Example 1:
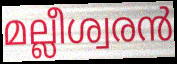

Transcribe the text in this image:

മല്ലീശ്വരൻ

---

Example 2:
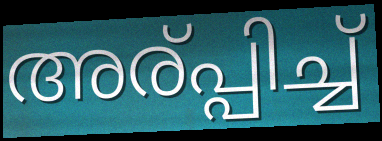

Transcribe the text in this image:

അര്പ്പിച്ച്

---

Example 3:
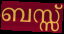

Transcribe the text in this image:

ബസ്സ്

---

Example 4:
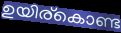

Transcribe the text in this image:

ഉയിര്കൊണ്ട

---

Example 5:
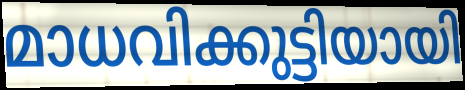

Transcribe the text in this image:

മാധവിക്കുട്ടിയായി